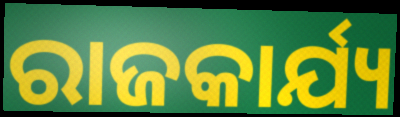
ରାଜକାର୍ଯ୍ୟ